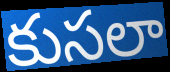
కుసలా